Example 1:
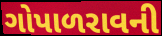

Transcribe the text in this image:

ગોપાળરાવની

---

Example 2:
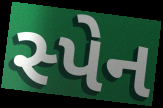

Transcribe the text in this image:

સ્પેન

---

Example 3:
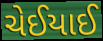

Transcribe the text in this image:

ચેઈયાઈ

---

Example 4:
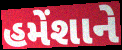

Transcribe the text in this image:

હમેંશાને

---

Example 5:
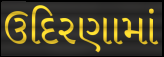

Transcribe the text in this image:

ઉદિરણામાં